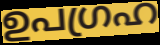
ഉപഗ്രഹ